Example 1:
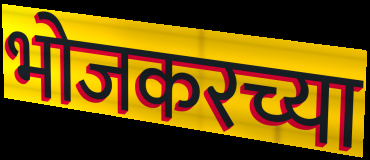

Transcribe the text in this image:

भोजकरच्या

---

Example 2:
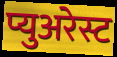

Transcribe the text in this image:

प्युअरेस्ट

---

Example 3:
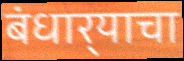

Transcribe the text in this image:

बंधार्‍याचा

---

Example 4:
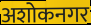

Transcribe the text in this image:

अशोकनगर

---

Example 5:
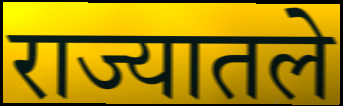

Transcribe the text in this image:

राज्यातले